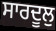
ਸਾਰਦੂਲੁ